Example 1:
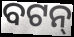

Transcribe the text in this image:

ବଟନ୍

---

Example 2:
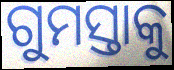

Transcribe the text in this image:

ଗୁମସ୍ତାକୁ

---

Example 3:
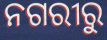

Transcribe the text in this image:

ନଗରୀରୁ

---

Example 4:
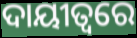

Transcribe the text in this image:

ଦାୟୀତ୍ଵରେ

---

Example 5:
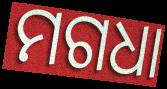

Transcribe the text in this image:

ମଗଧା